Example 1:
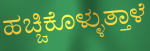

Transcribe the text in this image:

ಹಚ್ಚಿಕೊಳ್ಳುತ್ತಾಳೆ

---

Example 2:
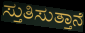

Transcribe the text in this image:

ಸ್ತುತಿಸುತ್ತಾನೆ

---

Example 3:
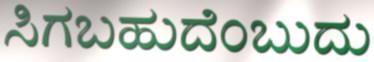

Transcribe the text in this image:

ಸಿಗಬಹುದೆಂಬುದು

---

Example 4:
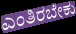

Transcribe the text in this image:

ಎಂತಿರಬೇಕು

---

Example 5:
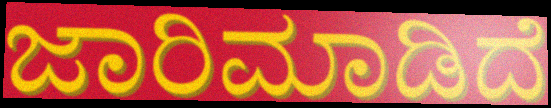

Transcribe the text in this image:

ಜಾರಿಮಾಡಿದೆ